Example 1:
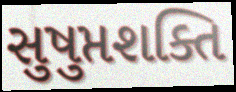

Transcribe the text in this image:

સુષુપ્તશક્તિ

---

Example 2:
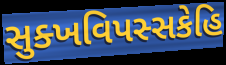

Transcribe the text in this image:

સુક્ખવિપસ્સકેહિ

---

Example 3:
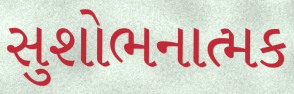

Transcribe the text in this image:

સુશોભનાત્મક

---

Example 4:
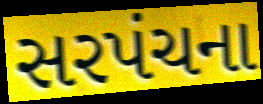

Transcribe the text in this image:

સરપંચના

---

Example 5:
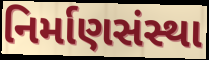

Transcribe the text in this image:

નિર્માણસંસ્થા